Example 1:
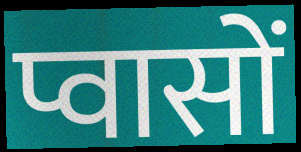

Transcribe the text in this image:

प्वासों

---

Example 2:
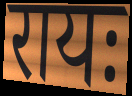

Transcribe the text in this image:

रायः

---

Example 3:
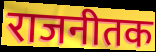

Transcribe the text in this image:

राजनीतक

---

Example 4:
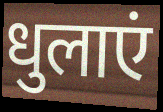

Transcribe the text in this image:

धुलाएं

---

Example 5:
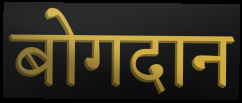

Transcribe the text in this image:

बोगदान